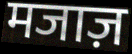
मजाज़